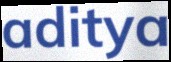
aditya